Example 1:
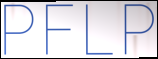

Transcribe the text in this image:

PFLP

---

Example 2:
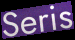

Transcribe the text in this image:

Seris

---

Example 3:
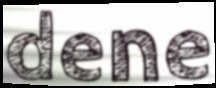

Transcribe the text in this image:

dene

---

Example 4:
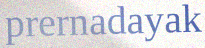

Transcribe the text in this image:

prernadayak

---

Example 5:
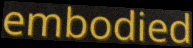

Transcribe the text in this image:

embodied